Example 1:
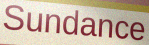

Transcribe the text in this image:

Sundance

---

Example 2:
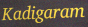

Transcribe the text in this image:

Kadigaram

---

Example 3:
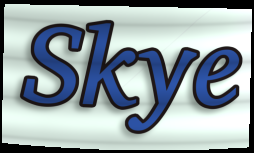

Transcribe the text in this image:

Skye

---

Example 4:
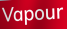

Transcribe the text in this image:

Vapour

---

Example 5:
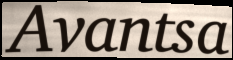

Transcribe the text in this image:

Avantsa